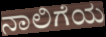
ನಾಲಿಗೆಯ